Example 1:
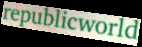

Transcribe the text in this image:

republicworld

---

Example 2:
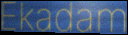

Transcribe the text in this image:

Ekadam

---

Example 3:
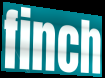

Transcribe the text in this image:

finch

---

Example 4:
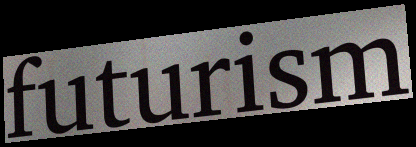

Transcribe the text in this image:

futurism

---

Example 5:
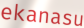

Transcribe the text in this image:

ekanasu